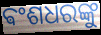
ଵଂଶଧରଙ୍କୁ